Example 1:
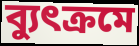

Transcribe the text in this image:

ব্যুৎক্রমে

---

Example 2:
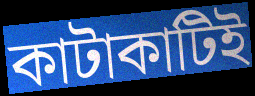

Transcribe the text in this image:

কাটাকাটিই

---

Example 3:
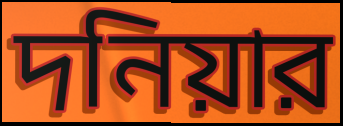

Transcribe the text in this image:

দনিয়ার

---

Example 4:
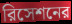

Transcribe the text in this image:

রিসেশনের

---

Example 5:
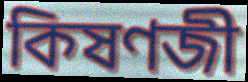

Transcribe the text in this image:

কিষণজী